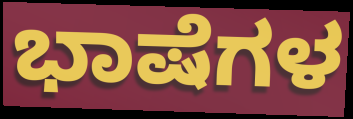
ಭಾಷೆಗಳ